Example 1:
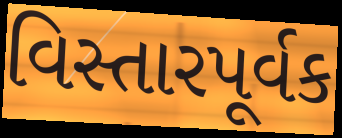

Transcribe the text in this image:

વિસ્તારપૂર્વક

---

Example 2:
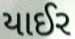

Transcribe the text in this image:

યાઈર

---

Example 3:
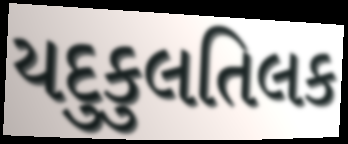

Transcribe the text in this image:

યદુકુલતિલક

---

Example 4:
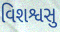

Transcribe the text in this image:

વિશશ્વસુ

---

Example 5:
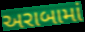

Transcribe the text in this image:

અરાબામાં